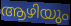
ആഴിയും